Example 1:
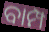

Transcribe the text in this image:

ବାମ୍ପ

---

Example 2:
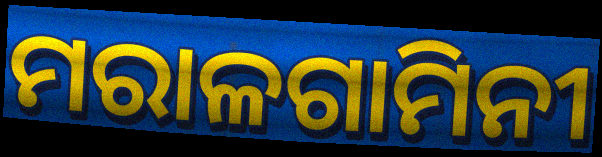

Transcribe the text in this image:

ମରାଳଗାମିନୀ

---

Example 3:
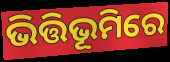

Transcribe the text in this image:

ଭିତ୍ତିଭୂମିରେ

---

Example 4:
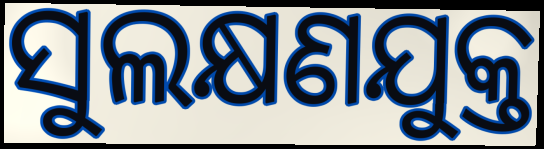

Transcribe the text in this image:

ସୁଲକ୍ଷଣଯୁକ୍ତ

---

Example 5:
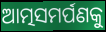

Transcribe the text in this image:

ଆତ୍ମସମର୍ପଣକୁ